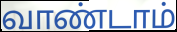
வாண்டாம்